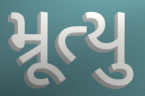
મ્રૂત્યુ